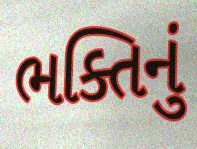
ભક્તિનું